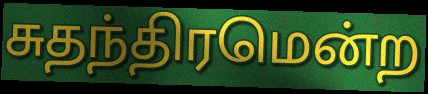
சுதந்திரமென்ற